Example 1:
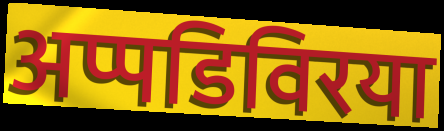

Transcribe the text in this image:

अप्पडिविरया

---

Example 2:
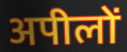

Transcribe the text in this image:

अपीलों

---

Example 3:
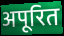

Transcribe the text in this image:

अपूरित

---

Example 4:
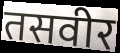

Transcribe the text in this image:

तसवीर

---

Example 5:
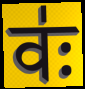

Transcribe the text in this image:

वः॑